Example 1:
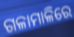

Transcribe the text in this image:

ଗଳାମାଳିରେ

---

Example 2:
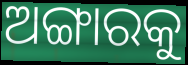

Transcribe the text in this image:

ଅଙ୍ଗାରକୁ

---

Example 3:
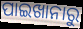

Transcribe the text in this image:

ପାଇଖାନାରୁ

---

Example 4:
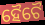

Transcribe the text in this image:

ହୈଚୈ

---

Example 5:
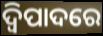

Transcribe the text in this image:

ଦ୍ୱିପାଦରେ